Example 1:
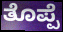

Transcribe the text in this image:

ತೊಪ್ಪೆ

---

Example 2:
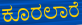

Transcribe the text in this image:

ಕೂರಲಾರೆ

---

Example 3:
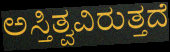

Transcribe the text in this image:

ಅಸ್ತಿತ್ವವಿರುತ್ತದೆ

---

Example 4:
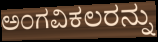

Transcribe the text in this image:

ಅಂಗವಿಕಲರನ್ನು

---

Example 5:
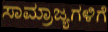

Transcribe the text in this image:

ಸಾಮ್ರಾಜ್ಯಗಳಿಗೆ